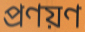
প্রণয়ণ